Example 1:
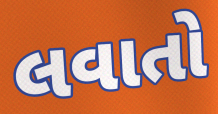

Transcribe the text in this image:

લવાતો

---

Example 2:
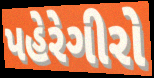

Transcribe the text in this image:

પહેરેગીરો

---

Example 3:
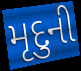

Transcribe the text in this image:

મૃદુની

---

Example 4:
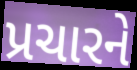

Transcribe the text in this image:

પ્રચારને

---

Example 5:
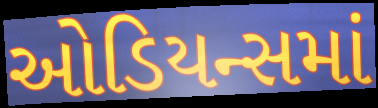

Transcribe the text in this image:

ઓડિયન્સમાં